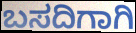
ಬಸದಿಗಾಗಿ